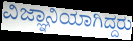
ವಿಜ್ಞಾನಿಯಾಗಿದ್ದರು